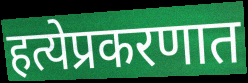
हत्येप्रकरणात